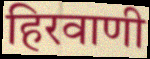
हिरवाणी